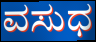
ವಸುಧ